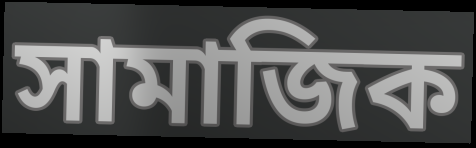
সামাজিক